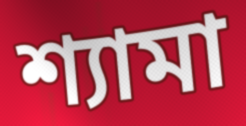
শ্যামা